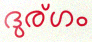
ദുര്ഗം